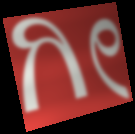
ಗೀ